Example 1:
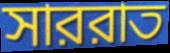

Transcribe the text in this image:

সাররাত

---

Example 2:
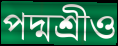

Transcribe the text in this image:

পদ্মশ্রীও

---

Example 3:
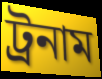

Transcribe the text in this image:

ট্রনাম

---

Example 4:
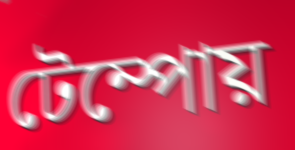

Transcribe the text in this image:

টেম্পোয়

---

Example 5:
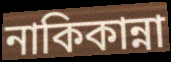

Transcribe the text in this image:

নাকিকান্না